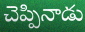
చెప్పినాడు